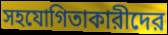
সহযোগিতাকারীদের